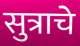
सुत्राचे